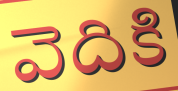
వెదికి